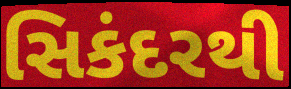
સિકંદરથી